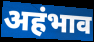
अहंभाव